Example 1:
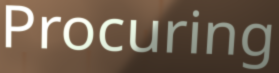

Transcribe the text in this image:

Procuring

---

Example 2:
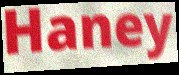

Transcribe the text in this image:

Haney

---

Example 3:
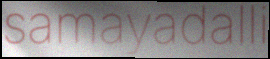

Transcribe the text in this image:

samayadalli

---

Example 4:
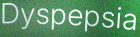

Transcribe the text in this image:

Dyspepsia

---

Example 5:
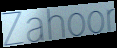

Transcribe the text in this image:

Zahoor